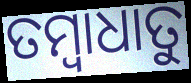
ତମ୍ବାଧାତୁ